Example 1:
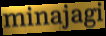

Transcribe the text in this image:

minajagi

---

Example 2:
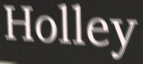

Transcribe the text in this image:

Holley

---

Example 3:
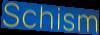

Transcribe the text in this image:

Schism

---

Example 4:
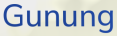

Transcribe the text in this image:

Gunung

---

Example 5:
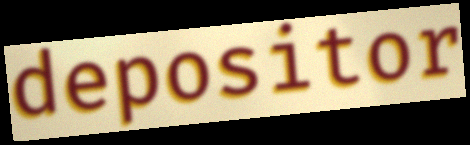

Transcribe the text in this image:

depositor